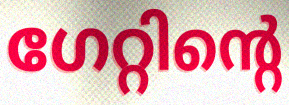
ഗേറ്റിന്റെ